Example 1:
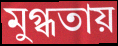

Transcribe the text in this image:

মুগ্ধতায়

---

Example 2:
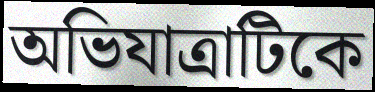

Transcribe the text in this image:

অভিযাত্রাটিকে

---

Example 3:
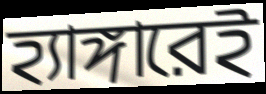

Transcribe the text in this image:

হ্যাঙ্গারেই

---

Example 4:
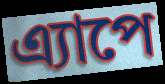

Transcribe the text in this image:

এ্যাপে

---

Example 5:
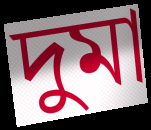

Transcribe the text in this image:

দুমা